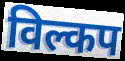
विल्कप